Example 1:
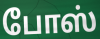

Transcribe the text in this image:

போஸ்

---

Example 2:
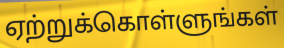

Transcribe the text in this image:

ஏற்றுக்கொள்ளுங்கள்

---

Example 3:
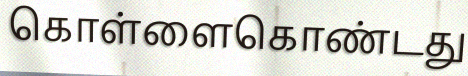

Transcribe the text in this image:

கொள்ளைகொண்டது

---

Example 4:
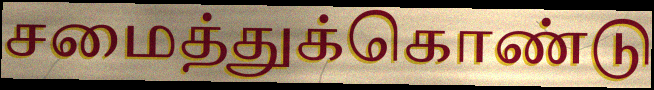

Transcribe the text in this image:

சமைத்துக்கொண்டு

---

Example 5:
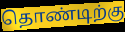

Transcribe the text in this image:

தொண்டிற்கு